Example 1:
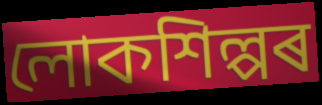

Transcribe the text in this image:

লোকশিল্পৰ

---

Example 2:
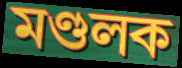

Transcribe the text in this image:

মণ্ডলক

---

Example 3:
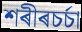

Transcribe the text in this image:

শৰীৰচৰ্চা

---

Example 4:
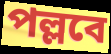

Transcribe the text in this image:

পল্লবে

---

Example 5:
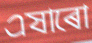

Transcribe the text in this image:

এষাৰো